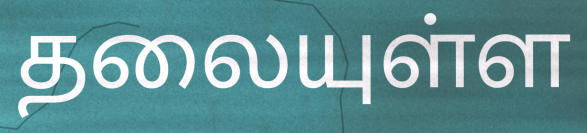
தலையுள்ள